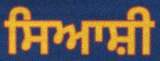
ਸਿਆਸ਼ੀ